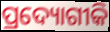
ପ୍ରଦ୍ୟୋଗୀକି